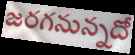
జరగనున్నదో